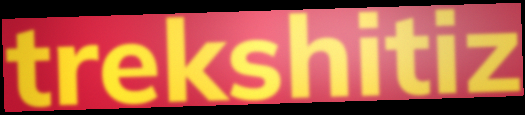
trekshitiz